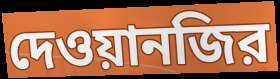
দেওয়ানজির